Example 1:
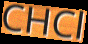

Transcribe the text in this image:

CHCl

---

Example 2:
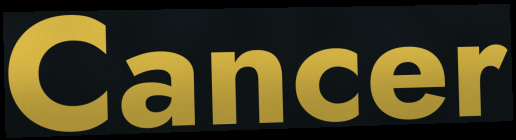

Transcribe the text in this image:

Cancer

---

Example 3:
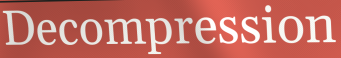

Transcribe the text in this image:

Decompression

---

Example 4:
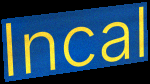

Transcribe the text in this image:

Incal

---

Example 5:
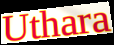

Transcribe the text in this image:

Uthara